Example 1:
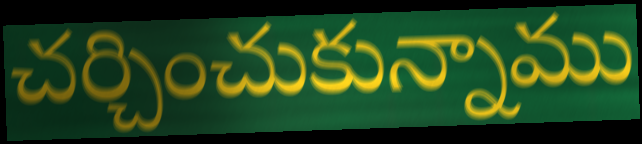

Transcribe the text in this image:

చర్చించుకున్నాము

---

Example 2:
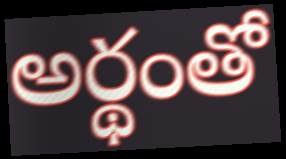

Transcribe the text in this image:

అర్థంతో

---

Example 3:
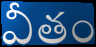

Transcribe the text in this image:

వీతం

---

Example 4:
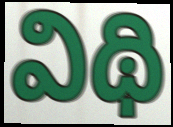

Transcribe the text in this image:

విథి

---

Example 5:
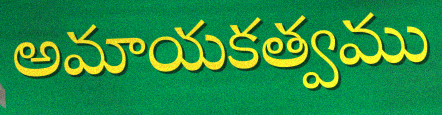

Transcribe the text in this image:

అమాయకత్వము